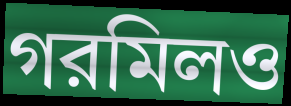
গরমিলও